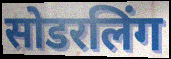
सोडरलिंग